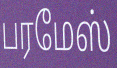
பரமேஸ்